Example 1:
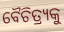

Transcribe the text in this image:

ବୈଚିତ୍ର୍ୟକୁ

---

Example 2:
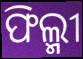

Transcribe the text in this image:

ଫିଲ୍ମୀ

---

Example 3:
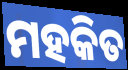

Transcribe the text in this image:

ମହକିତ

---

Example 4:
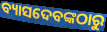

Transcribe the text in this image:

ବ୍ୟାସଦେବଙ୍କଠାରୁ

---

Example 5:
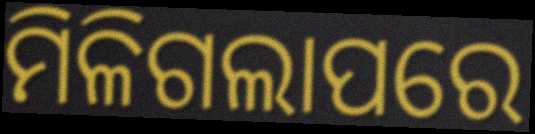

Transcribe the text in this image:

ମିଳିଗଲାପରେ